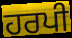
ਹਰਪੀ